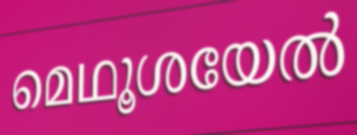
മെഥൂശയേൽ